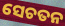
ସେଚତନ